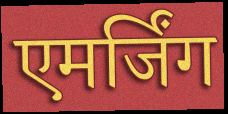
एमर्जिंग